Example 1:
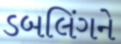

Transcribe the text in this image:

ડબલિંગને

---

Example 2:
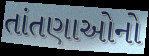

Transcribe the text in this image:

તાંતણાઓનો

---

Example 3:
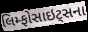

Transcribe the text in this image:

લિમ્ફોસાઇટ્સના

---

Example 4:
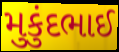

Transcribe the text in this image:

મુકુંદભાઈ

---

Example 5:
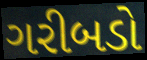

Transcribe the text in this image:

ગરીબડો